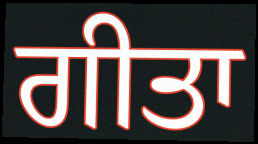
ਗੀਤਾ